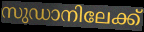
സുഡാനിലേക്ക്